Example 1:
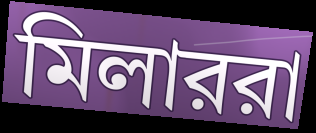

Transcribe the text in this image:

মিলাররা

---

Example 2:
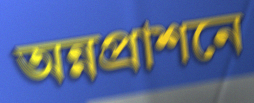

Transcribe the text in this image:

অন্নপ্রাশনে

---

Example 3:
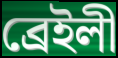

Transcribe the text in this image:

ব্রেইলী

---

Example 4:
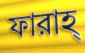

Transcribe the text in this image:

ফারাহ্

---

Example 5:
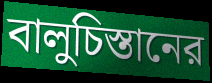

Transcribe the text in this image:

বালুচিস্তানের